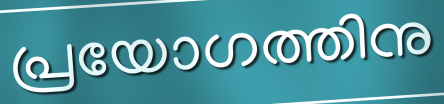
പ്രയോഗത്തിനു